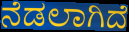
ನೆಡಲಾಗಿದೆ